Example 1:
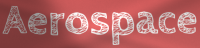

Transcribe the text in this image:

Aerospace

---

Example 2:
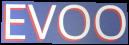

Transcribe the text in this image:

EVOO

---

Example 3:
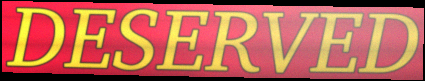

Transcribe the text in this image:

DESERVED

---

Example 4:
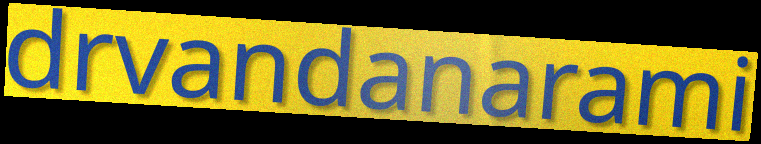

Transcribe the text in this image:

drvandanarami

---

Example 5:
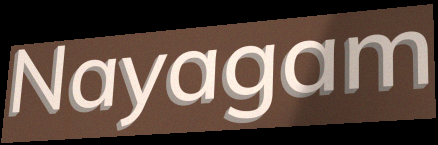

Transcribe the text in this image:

Nayagam